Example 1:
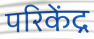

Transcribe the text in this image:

परिकेंद्र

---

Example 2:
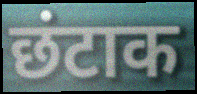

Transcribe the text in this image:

छंटाक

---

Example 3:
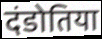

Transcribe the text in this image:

दंडोतिया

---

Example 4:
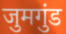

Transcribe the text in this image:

जुमगुंड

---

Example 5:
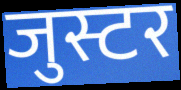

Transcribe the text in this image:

जुस्टर